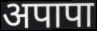
अपापा